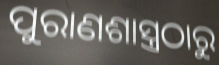
ପୁରାଣଶାସ୍ତ୍ରଠାରୁ